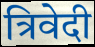
त्रिवेदी